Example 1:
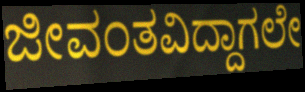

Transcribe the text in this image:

ಜೀವಂತವಿದ್ದಾಗಲೇ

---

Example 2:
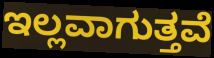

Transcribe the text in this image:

ಇಲ್ಲವಾಗುತ್ತವೆ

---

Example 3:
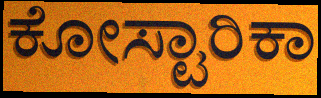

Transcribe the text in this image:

ಕೋಸ್ಟಾರಿಕಾ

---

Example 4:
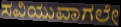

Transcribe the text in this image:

ಸವಿಯುವಾಗಲೇ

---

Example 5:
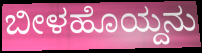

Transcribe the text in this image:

ಬೀಳಹೊಯ್ದನು